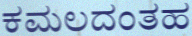
ಕಮಲದಂತಹ